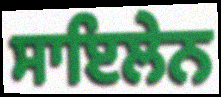
ਸਾਇਲੇਨ